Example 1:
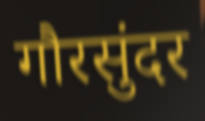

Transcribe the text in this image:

गौरसुंदर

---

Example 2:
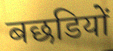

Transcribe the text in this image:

बछडियों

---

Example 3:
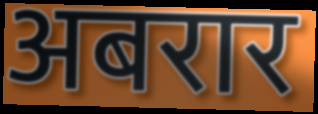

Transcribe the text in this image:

अबरार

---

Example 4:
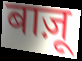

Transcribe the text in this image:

बाज़ू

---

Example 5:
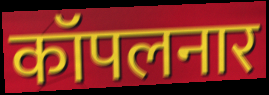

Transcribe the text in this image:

कॉपलनार